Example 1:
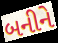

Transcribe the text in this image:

બનીને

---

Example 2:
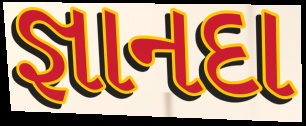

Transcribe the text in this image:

જ્ઞાનદા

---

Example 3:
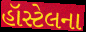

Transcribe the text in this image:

હૉસ્ટેલના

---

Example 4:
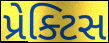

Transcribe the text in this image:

પ્રેક્ટિસ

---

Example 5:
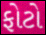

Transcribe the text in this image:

ફોટો